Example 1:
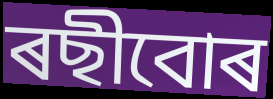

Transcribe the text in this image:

ৰছীবোৰ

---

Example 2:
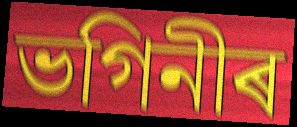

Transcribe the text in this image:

ভগিনীৰ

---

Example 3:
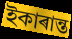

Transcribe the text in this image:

ইকাৰান্ত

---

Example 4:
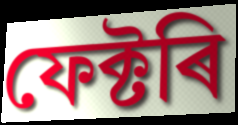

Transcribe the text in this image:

ফেক্টৰি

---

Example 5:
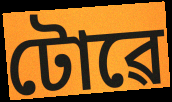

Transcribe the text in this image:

টোৱে